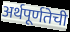
अर्थपूर्णतेची